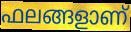
ഫലങ്ങളാണ്